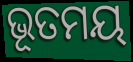
ଭୂତମୟ